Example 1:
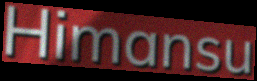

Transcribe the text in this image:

Himansu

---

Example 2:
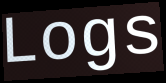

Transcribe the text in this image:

Logs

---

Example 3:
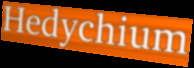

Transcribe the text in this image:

Hedychium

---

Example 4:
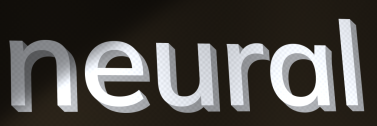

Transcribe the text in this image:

neural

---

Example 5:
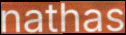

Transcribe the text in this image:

nathas